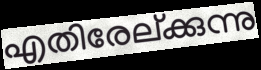
എതിരേല്ക്കുന്നു